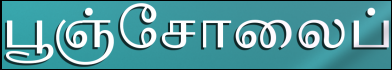
பூஞ்சோலைப்